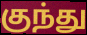
குந்து